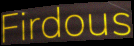
Firdous